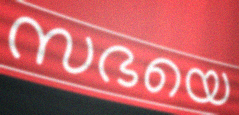
സഭയെ